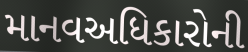
માનવઅધિકારોની